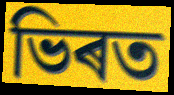
ভিৰত